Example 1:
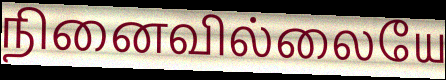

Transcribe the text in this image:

நினைவில்லையே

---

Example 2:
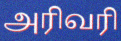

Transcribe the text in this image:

அரிவரி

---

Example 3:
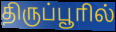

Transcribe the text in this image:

திருப்பூரில்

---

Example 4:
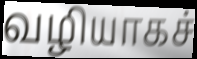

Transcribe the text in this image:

வழியாகச்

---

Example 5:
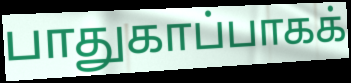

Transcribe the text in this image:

பாதுகாப்பாகக்